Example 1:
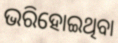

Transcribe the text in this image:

ଭରିହୋଇଥିବା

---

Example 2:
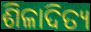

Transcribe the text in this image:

ଶିଳାଦିତ୍ୟ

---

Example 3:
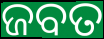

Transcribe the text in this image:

ଜବତ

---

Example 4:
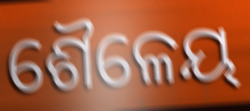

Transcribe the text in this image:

ଶୈଳେୟ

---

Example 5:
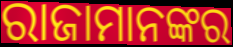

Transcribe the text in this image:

ରାଜାମାନଙ୍କର